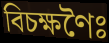
বিচক্ষণৈঃ